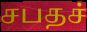
சபதச்